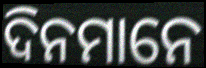
ଦିନମାନେ